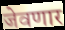
जेवणार